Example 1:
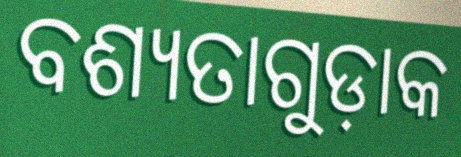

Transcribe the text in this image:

ବଶ୍ୟତାଗୁଡ଼ାକ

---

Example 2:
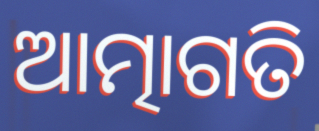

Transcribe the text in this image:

ଆତ୍ମାଗତି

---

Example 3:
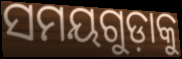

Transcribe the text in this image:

ସମୟଗୁଡ଼ାକୁ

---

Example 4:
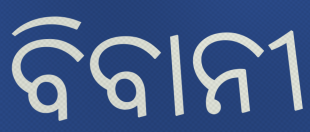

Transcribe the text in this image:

ବିବାନୀ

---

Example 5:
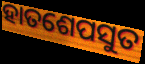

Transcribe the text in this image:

ହାତଶେପସୁତ